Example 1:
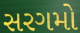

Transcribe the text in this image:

સરગમો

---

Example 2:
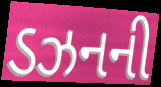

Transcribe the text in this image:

ડઝનની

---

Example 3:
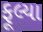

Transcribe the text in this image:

ફૂલ્યા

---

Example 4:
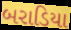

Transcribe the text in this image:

બરાડિયા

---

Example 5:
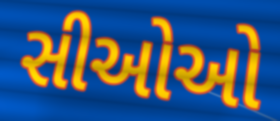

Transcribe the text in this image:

સીઓઓ